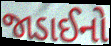
જાડાઈનો